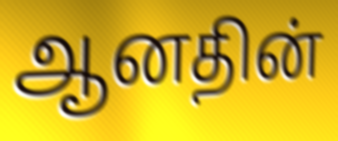
ஆனதின்